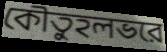
কৌতুহলভরে